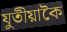
যুতীয়াকৈ